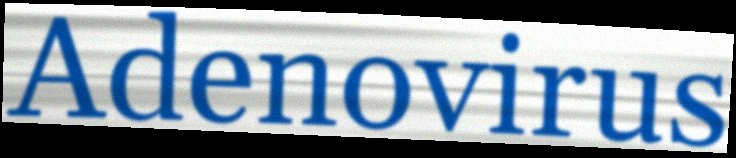
Adenovirus